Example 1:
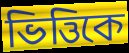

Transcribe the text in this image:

ভিত্তিকে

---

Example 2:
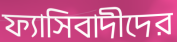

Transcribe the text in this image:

ফ্যাসিবাদীদের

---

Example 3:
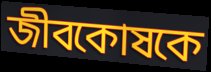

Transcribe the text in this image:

জীবকোষকে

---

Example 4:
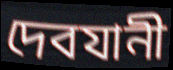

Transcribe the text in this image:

দেবযানী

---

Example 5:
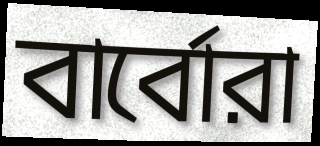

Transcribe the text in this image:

বার্বোরা